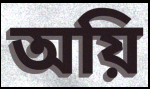
অয়ি